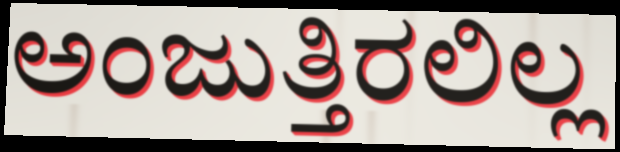
ಅಂಜುತ್ತಿರಲಿಲ್ಲ